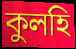
কুলহি